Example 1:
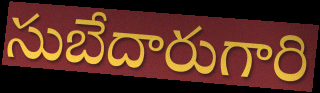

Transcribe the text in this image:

సుబేదారుగారి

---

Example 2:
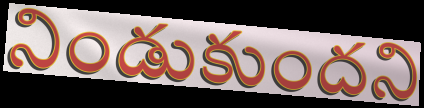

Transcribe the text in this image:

నిండుకుందని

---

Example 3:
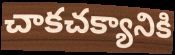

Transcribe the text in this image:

చాకచక్యానికి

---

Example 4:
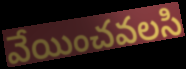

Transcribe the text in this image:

వేయించవలసి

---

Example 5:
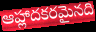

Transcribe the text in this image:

ఆహ్లాదకరమైనది